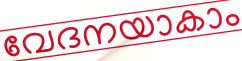
വേദനയാകാം